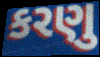
કરણુ